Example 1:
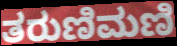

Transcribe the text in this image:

ತರುಣಿಮಣಿ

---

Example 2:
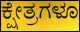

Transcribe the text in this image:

ಕ್ಷೇತ್ರಗಳೂ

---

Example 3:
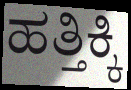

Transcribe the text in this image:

ಹತ್ತಿಕ್ಕಿ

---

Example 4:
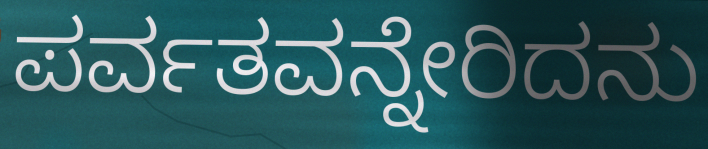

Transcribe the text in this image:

ಪರ್ವತವನ್ನೇರಿದನು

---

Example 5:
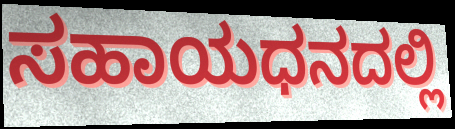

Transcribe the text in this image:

ಸಹಾಯಧನದಲ್ಲಿ